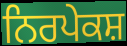
ਨਿਰਪੇਕਸ਼